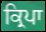
ਕ੍ਰਿਪਾ